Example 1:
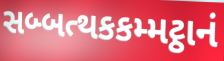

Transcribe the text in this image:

સબ્બત્થકકમ્મટ્ઠાનં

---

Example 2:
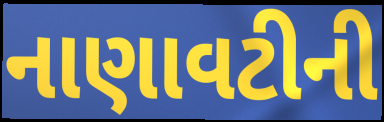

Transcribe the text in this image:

નાણાવટીની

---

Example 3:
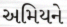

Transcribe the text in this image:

અમિયને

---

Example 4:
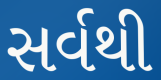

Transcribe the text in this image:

સર્વથી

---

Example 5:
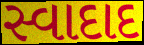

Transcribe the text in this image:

સ્વાદાદ